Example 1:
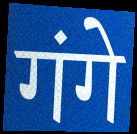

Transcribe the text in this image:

गंगे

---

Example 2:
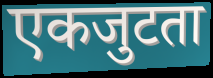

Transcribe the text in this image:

एकजुटता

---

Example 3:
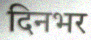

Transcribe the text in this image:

दिनभर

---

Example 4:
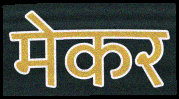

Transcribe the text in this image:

मेकर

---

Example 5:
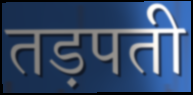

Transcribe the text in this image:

तड़पती